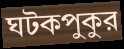
ঘটকপুকুর